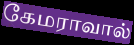
கேமராவால்